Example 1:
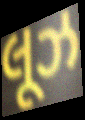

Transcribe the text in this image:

લૂઝ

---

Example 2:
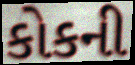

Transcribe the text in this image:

કોકની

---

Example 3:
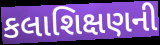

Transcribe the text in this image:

કલાશિક્ષણની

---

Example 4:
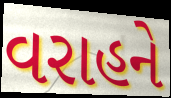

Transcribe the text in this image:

વરાહને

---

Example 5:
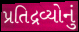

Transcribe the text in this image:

પ્રતિદ્રવ્યોનું